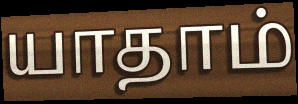
யாதாம்